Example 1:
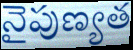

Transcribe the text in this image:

నైపుణ్యత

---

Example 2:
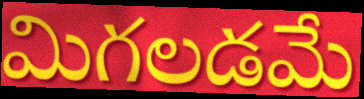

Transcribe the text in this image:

మిగలడమే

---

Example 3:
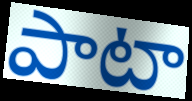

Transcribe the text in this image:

పాటా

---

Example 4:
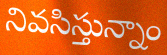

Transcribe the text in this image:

నివసిస్తున్నాం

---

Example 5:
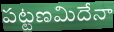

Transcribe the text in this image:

పట్టణమిదేనా